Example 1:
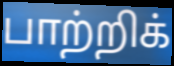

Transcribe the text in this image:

பாற்றிக்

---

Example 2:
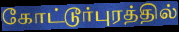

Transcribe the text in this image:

கோட்டூர்புரத்தில்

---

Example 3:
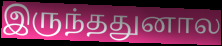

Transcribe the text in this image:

இருந்ததுனால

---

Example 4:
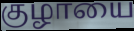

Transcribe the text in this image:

குழாயை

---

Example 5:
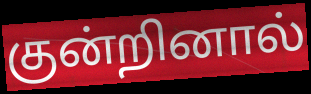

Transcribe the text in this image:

குன்றினால்